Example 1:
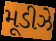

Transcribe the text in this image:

મૂડીઝે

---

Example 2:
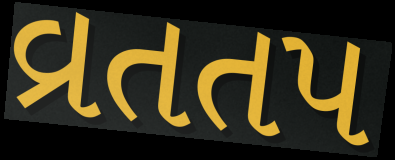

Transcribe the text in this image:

વ્રતતપ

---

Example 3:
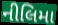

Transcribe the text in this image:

નીલિમા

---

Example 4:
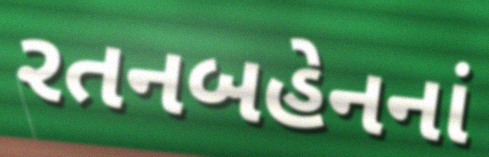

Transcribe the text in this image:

રતનબહેનનાં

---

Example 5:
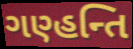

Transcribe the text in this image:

ગણ્હન્તિ